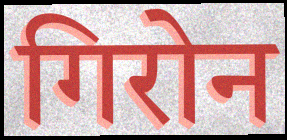
गिरोन